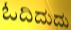
ಓದಿದುದು